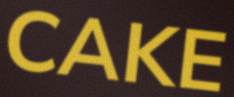
CAKE